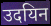
उदयिन